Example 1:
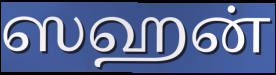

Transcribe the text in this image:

ஸஹன்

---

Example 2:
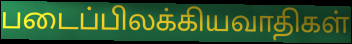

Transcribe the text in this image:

படைப்பிலக்கியவாதிகள்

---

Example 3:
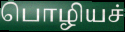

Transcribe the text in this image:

பொழியச்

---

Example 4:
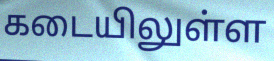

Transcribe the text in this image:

கடையிலுள்ள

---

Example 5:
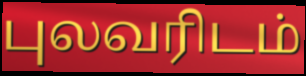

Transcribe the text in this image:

புலவரிடம்